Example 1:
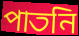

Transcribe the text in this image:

পাতনি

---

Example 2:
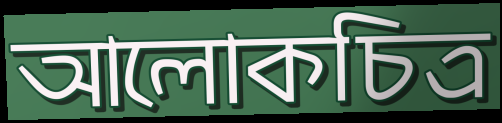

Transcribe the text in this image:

আলোকচিত্ৰ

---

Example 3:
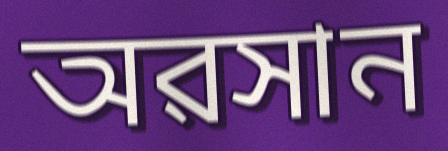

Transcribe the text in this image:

অৱসান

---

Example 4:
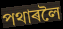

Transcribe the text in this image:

পথাৰলৈ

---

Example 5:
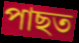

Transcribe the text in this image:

পাছত